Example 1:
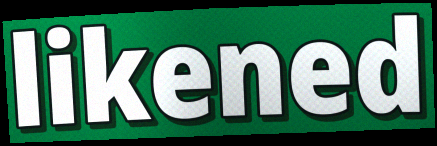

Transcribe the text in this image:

likened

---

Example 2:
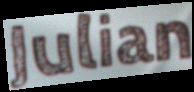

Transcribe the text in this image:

Julian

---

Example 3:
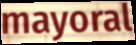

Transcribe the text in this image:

mayoral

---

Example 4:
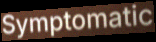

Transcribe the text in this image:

Symptomatic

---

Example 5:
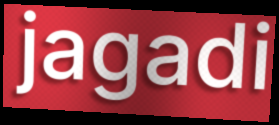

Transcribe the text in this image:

jagadi